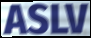
ASLV